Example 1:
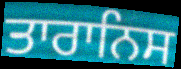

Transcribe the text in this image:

ਤਾਰਾਨਿਸ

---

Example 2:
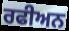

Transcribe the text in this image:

ਰਫੀਅਨ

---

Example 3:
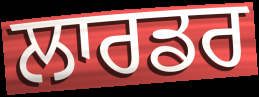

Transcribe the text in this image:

ਲਾਰਡਰ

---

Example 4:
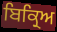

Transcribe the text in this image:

ਬਿਕ੍ਰਿਅ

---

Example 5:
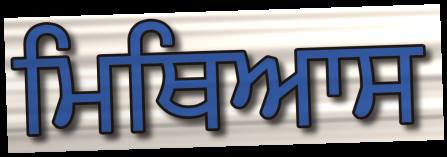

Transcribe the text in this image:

ਮਿਥਿਆਸ